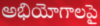
అభియోగాలపై